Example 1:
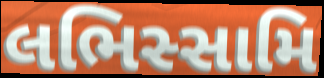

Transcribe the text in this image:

લભિસ્સામિ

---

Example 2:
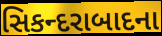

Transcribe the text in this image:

સિકન્દરાબાદના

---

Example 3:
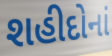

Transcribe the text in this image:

શહીદોનાં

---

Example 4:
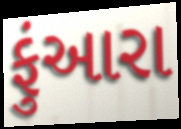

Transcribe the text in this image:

ફુંઆરા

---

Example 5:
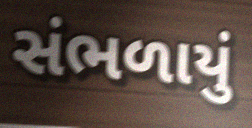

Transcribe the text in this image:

સંભળાયું